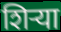
शिर्‍या